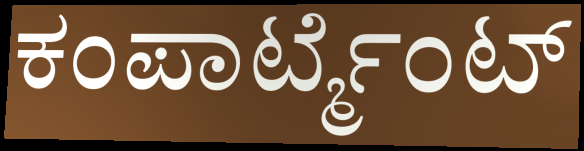
ಕಂಪಾರ್ಟ್ಮೆಂಟ್